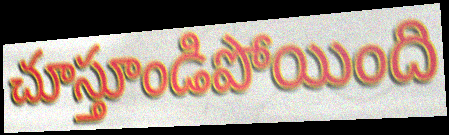
చూస్తూండిపోయింది